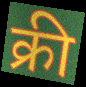
क्री